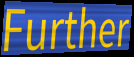
Further